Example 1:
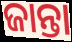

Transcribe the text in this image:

ଜାନ୍ତା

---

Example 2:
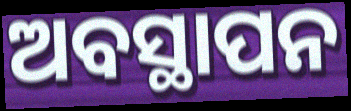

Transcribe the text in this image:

ଅବସ୍ଥାପନ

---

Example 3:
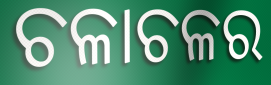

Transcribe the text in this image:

ଚଳାଚଳର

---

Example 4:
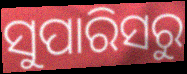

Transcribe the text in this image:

ସୁପାରିସରୁ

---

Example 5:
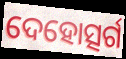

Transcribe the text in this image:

ଦେହୋତ୍ସର୍ଗ